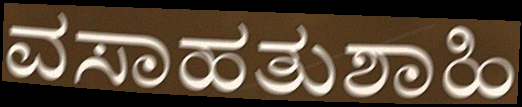
ವಸಾಹತುಶಾಹಿ